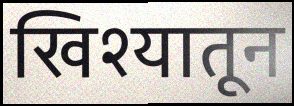
खिश्यातून